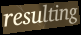
resulting